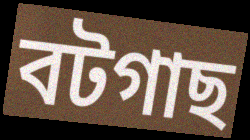
বটগাছ